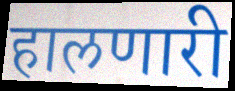
हालणारी